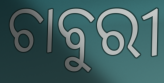
ଚାବୁରୀ